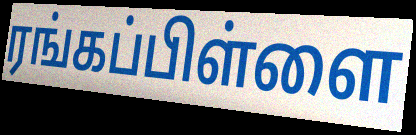
ரங்கப்பிள்ளை